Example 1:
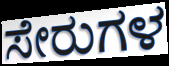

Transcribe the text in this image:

ಸೇರುಗಳ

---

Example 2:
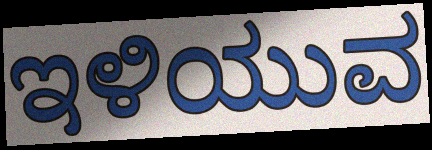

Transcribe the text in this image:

ಇಳಿಯುವ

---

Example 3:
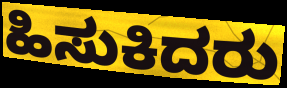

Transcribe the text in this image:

ಹಿಸುಕಿದರು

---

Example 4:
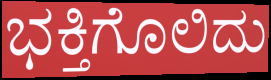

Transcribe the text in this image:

ಭಕ್ತಿಗೊಲಿದು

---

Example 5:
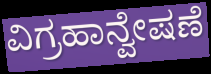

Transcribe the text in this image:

ವಿಗ್ರಹಾನ್ವೇಷಣೆ